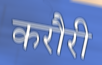
करौरी